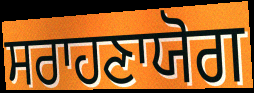
ਸਰਾਹਣਾਯੋਗ